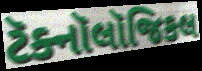
ટૅક્નૉલૉજિકલ